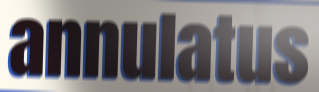
annulatus